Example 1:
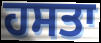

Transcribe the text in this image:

ਹਸਤਾ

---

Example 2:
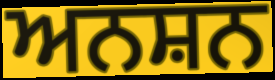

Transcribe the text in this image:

ਅਨਸ਼ਨ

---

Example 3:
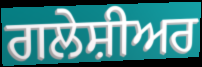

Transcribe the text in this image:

ਗਲੇਸ਼ੀਅਰ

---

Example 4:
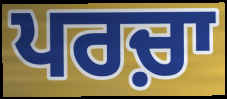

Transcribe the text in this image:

ਪਰਚ਼ਾ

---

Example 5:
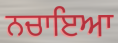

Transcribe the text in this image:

ਨਚਾਇਆ